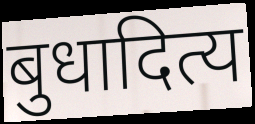
बुधादित्य